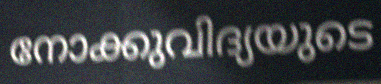
നോക്കുവിദ്യയുടെ